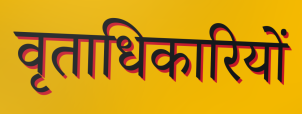
वृताधिकारियों